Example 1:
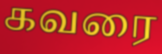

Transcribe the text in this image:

கவரை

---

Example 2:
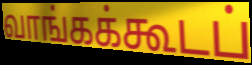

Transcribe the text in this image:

வாங்கக்கூடப்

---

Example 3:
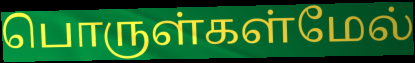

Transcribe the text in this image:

பொருள்கள்மேல்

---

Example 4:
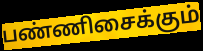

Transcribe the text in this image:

பண்ணிசைக்கும்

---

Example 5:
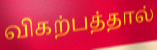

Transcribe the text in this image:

விகற்பத்தால்